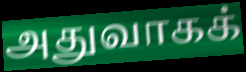
அதுவாகக்